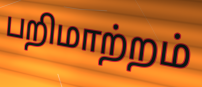
பறிமாற்றம்